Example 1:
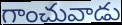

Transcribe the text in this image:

గాంచువాడు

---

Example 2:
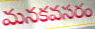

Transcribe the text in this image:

మనకవసరం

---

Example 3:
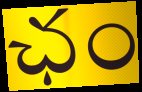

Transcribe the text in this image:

ఛం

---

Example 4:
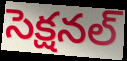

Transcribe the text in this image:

సెక్షనల్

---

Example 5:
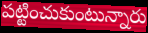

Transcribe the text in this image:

పట్టించుకుంటున్నారు